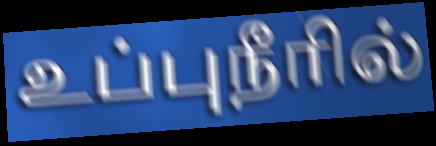
உப்புநீரில்